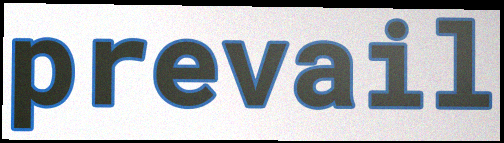
prevail